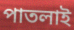
পাতলাই